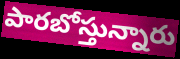
పారబోస్తున్నారు